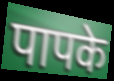
पापके